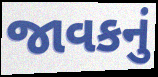
જાવકનું